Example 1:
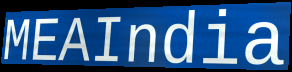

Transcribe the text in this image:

MEAIndia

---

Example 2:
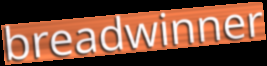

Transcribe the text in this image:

breadwinner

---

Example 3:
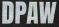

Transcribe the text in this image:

DPAW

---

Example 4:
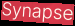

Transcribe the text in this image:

Synapse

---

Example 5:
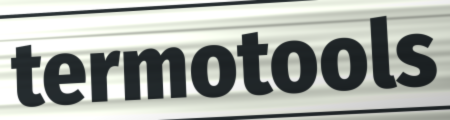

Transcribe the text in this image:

termotools